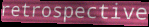
retrospective